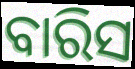
ବାରିସ